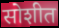
सोशीत